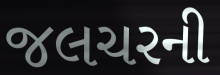
જલચરની